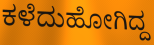
ಕಳೆದುಹೋಗಿದ್ದ